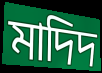
মাদিদ